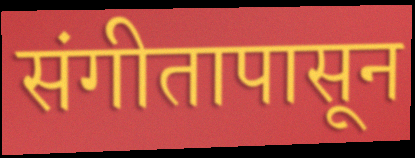
संगीतापासून